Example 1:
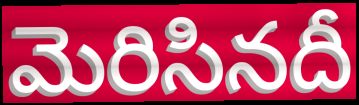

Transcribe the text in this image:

మెరిసినదీ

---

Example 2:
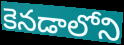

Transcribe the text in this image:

కెనడాలోని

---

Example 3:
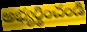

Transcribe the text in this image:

అభ్యర్థించండి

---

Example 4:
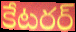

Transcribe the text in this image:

కేటరర్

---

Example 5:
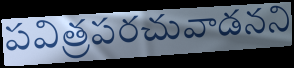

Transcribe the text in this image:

పవిత్రపరచువాడనని